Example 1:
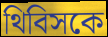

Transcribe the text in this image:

থিবিসকে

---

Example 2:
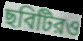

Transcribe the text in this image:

ছবিটিরও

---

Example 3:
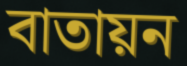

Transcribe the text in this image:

বাতায়ন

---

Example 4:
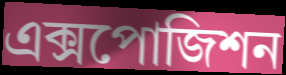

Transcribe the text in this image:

এক্সপোজিশন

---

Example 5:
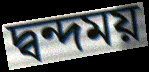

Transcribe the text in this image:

দ্বন্দময়